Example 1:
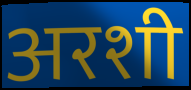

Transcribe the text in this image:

अरशी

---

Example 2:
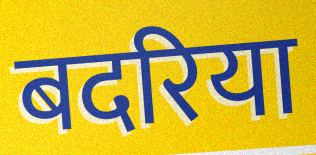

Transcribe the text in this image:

बदरिया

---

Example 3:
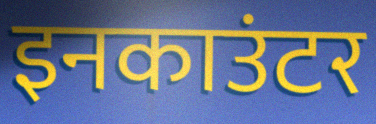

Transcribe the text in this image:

इनकाउंटर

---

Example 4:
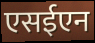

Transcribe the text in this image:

एसईएन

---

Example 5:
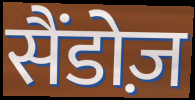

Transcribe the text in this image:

सैंडोज़